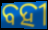
ବହୀ